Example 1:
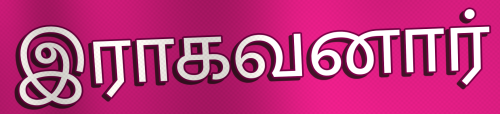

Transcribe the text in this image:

இராகவனார்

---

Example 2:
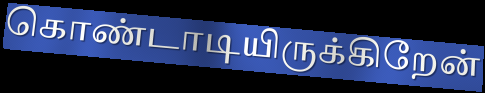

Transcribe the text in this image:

கொண்டாடியிருக்கிறேன்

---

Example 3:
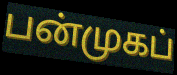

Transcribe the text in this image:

பன்முகப்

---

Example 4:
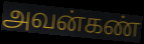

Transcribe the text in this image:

அவன்கண்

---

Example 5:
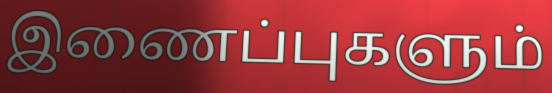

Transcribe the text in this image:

இணைப்புகளும்